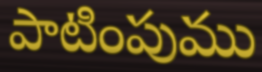
పాటింపుము